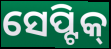
ସେପ୍ଟିକ୍